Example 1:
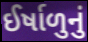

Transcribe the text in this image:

ઈર્ષાળુનું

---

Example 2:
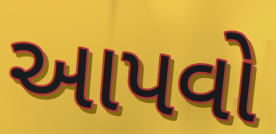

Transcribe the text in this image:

આપવો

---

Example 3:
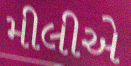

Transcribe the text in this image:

મીલીએ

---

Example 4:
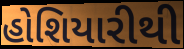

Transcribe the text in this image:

હોશિયારીથી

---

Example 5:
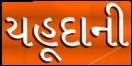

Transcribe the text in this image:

યહૂદાની